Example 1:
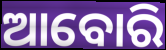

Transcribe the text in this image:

ଆବୋରି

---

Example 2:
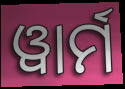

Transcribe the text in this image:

ୱାର୍ମ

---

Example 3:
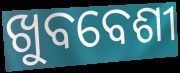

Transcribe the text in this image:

ଖୁବବେଶୀ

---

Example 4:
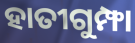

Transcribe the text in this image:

ହାତୀଗୁମ୍ଫା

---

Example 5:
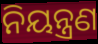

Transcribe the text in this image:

ନିୟନ୍ତ୍ରଣ